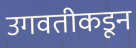
उगवतीकडून